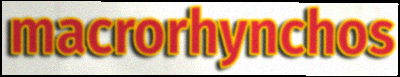
macrorhynchos